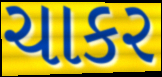
ચાકર